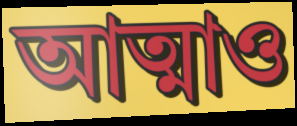
আত্মাও